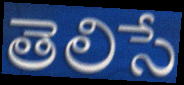
తెలిసే